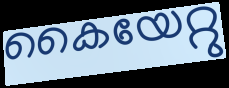
കൈയേറ്റു